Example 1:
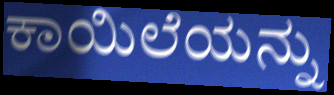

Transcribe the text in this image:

ಕಾಯಿಲೆಯನ್ನು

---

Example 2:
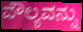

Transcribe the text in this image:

ವೌಲ್ಯವನ್ನು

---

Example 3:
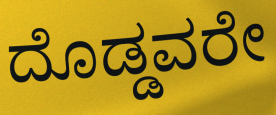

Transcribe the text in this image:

ದೊಡ್ಡವರೇ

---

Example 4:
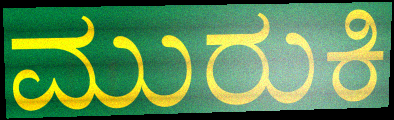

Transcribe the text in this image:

ಮುರುಕಿ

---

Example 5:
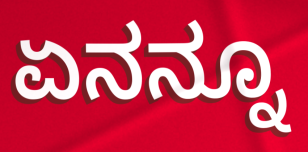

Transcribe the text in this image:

ಏನನ್ನೂ